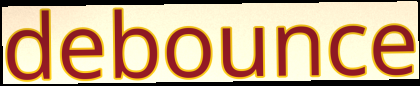
debounce